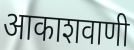
आकाशवाणी